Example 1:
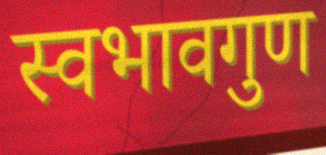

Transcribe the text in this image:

स्वभावगुण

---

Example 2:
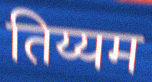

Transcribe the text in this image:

तिय्यम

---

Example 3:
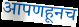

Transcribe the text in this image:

आपणहूनच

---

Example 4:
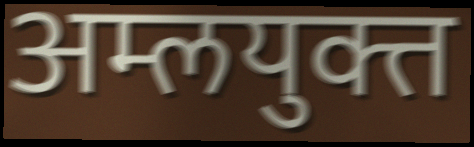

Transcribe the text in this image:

अम्लयुक्त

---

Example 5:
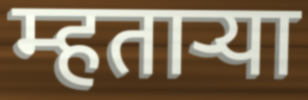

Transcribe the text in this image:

म्हताऱ्या